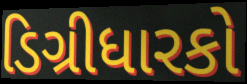
ડિગ્રીધારકો